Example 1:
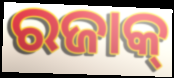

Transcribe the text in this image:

ରଜାକ୍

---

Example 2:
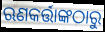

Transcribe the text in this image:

ଋଣକର୍ତ୍ତାଙ୍କଠାରୁ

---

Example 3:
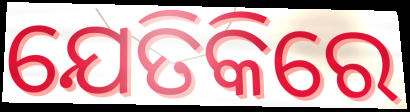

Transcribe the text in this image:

ଯେତିକିରେ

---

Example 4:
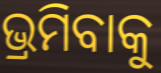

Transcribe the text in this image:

ଭ୍ରମିବାକୁ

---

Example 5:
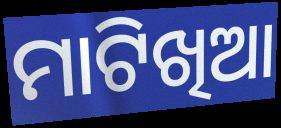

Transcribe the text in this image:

ମାଟିଖିଆ